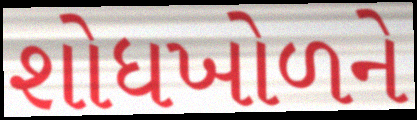
શોધખોળને